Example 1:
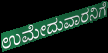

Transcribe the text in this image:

ಉಮೇದುವಾರನಿಗೆ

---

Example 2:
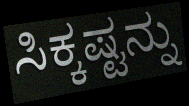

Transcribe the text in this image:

ಸಿಕ್ಕಷ್ಟನ್ನು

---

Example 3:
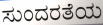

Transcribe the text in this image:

ಸುಂದರತೆಯ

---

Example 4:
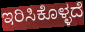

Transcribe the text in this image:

ಇರಿಸಿಕೊಳ್ಳದೆ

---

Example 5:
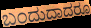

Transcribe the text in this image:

ಬಂದುದಾದರೂ